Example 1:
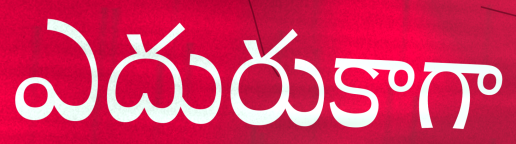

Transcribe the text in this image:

ఎదురుకాగా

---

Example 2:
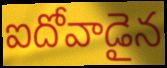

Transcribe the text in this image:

ఐదోవాడైన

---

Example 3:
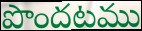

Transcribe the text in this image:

పొందటము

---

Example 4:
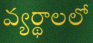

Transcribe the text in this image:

వ్యర్థాలలో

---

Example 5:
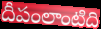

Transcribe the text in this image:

దీపంలాంటిది